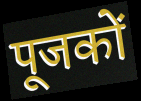
पूजकों